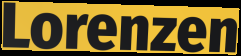
Lorenzen